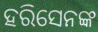
ହରିସେନଙ୍କ